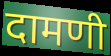
दामणी